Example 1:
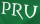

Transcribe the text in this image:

PRU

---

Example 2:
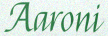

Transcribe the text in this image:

Aaroni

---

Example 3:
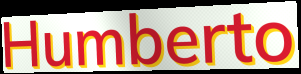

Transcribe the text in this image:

Humberto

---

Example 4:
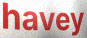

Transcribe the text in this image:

havey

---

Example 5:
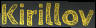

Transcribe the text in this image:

Kirillov